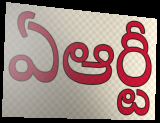
ఏఆర్టీ